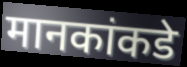
मानकांकडे